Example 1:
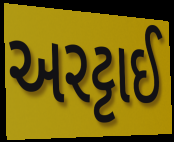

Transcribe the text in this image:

અરટ્ટાઈ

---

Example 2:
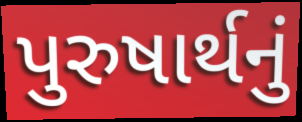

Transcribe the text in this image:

પુરુષાર્થનું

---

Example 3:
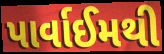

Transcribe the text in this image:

પાર્વાઈમથી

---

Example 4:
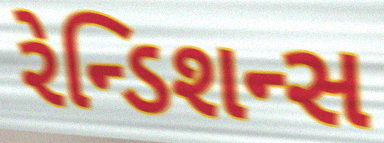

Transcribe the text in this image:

રેન્ડિશન્સ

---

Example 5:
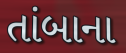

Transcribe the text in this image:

તાંબાના